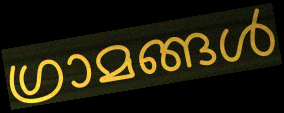
ഗ്രാമങ്ങൾ